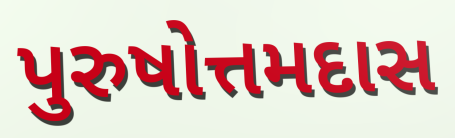
પુરુષોત્તમદાસ